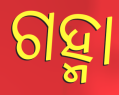
ଗହ୍ମା